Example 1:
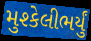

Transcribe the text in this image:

મુશ્કેલીભર્યું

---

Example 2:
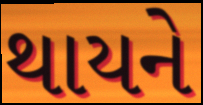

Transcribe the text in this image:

થાયને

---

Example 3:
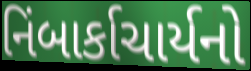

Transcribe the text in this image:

નિંબાર્કાચાર્યનો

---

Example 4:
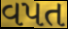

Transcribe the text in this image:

વપત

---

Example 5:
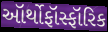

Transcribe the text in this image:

ઑર્થોફૉસ્ફૉરિક